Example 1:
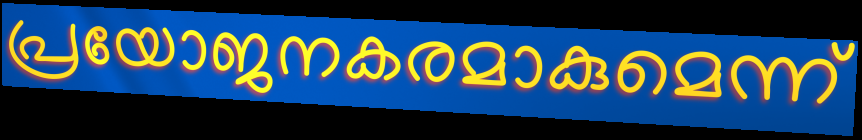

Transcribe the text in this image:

പ്രയോജനകരമാകുമെന്ന്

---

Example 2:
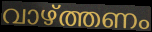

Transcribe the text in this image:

വാഴ്ത്തണം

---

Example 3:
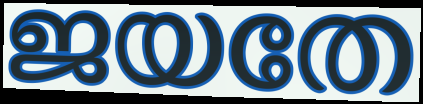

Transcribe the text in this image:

ജയതേ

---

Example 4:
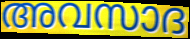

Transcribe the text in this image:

അവസാദ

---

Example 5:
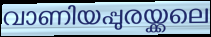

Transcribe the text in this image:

വാണിയപ്പുരയ്ക്കലെ